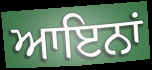
ਆਇਨਾਂ